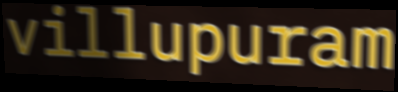
villupuram